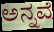
ಅನ್ನವೆ